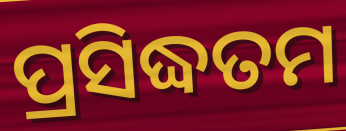
ପ୍ରସିଦ୍ଧତମ